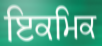
ਇਕਮਿਕ